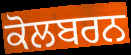
ਕੋਲਬਰਨ